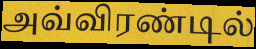
அவ்விரண்டில்